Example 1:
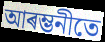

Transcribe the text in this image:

আৰম্ভনীতে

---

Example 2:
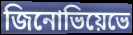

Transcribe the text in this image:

জিনোভিয়েভে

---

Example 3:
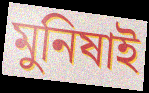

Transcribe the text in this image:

মুনিষাই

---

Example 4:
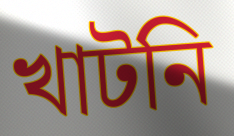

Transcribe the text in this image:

খাটনি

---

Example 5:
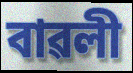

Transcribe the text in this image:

বাৱলী